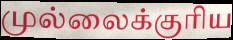
முல்லைக்குரிய